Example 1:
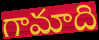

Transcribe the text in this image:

గామాది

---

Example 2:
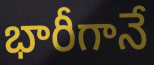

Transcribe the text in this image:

భారీగానే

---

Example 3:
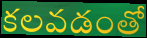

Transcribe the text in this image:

కలవడంతో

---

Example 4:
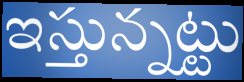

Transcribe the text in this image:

ఇస్తున్నట్టు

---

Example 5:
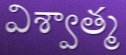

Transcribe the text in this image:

విశ్వాత్మ